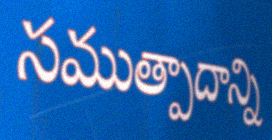
సముత్పాదాన్ని